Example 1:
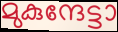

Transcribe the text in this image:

മുകുന്ദേട്ടാ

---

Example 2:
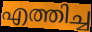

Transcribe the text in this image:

എത്തിച്ച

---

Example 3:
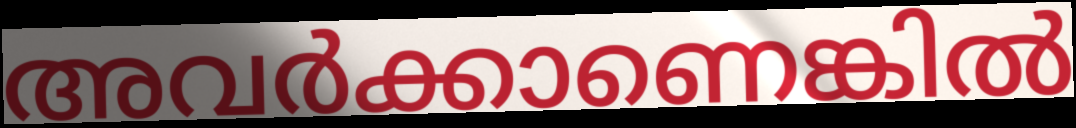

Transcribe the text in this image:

അവർക്കാണെങ്കിൽ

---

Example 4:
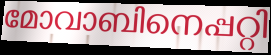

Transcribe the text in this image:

മോവാബിനെപ്പറ്റി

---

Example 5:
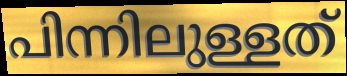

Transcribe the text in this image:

പിന്നിലുള്ളത്